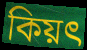
কিয়ৎ